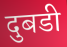
दुबडी